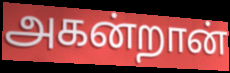
அகன்றான்